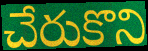
చేరుకొని